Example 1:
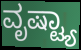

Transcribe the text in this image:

ವೃಷ್ಟ್ಯಾ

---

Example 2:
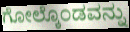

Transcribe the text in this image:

ಗೋಲ್ಕೊಂಡವನ್ನು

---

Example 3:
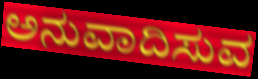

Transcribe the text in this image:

ಅನುವಾದಿಸುವ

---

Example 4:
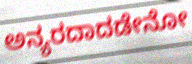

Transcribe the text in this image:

ಅನ್ಯರದಾದಡೇನೋ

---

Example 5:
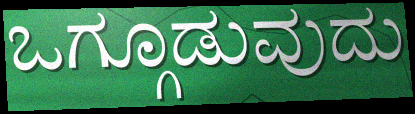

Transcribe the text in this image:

ಒಗ್ಗೂಡುವುದು